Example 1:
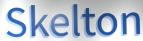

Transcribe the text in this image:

Skelton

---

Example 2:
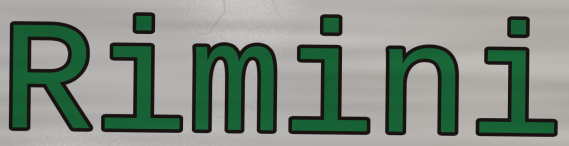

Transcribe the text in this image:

Rimini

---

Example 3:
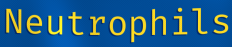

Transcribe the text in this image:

Neutrophils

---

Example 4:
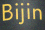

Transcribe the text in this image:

Bijin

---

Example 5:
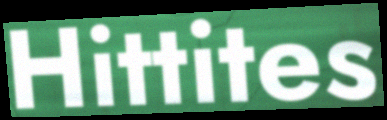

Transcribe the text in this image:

Hittites